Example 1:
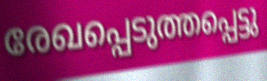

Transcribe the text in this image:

രേഖപ്പെടുത്തപ്പെട്ടു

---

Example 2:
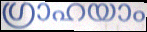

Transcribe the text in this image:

ഗ്രാഹയാം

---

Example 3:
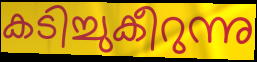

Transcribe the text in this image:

കടിച്ചുകീറുന്നു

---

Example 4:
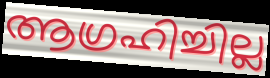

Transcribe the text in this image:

ആഗ്രഹിച്ചില്ല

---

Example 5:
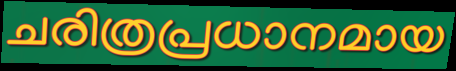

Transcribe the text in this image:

ചരിത്രപ്രധാനമായ